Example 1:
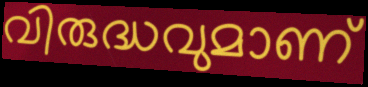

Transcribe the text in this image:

വിരുദ്ധവുമാണ്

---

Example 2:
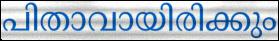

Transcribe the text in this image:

പിതാവായിരിക്കും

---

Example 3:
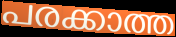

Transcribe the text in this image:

പരക്കാത്ത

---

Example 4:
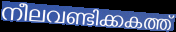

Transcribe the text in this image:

നീലവണ്ടിക്കകത്ത്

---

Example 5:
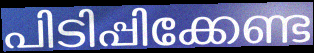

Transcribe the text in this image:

പിടിപ്പിക്കേണ്ട